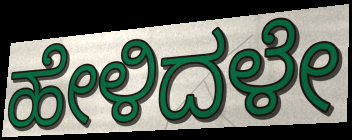
ಹೇಳಿದಳೇ